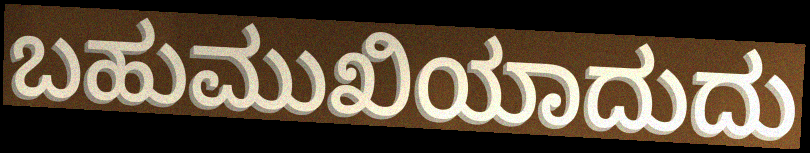
ಬಹುಮುಖಿಯಾದುದು